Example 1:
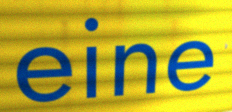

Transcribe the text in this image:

eine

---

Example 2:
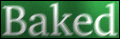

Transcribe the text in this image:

Baked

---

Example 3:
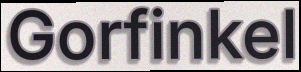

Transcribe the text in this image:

Gorfinkel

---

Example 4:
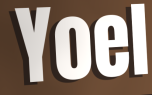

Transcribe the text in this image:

Yoel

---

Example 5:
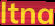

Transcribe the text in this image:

Itna